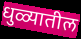
धुळ्यातील